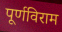
पूर्णविराम